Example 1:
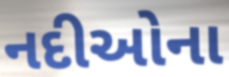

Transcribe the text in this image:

નદીઓના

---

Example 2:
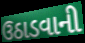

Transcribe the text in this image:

ઉઠાડવાની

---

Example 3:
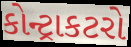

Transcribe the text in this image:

કોન્ટ્રાકટરો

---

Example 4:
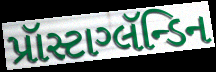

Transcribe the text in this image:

પ્રૉસ્ટાગ્લૅન્ડિન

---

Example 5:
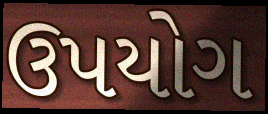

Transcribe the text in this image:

ઉપયોગ